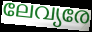
ലേവ്യരേ